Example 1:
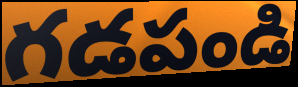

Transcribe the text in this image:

గడపండి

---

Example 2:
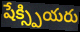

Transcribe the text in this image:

షేక్స్పియరు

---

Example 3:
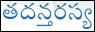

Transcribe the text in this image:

తదన్తరస్య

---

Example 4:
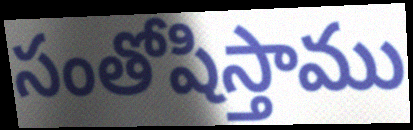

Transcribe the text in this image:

సంతోషిస్తాము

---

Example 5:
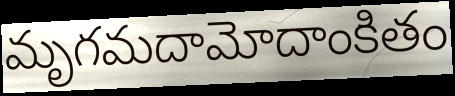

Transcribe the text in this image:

మృగమదామోదాంకితం